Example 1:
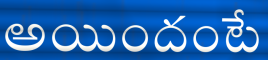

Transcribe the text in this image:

అయిందంటే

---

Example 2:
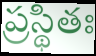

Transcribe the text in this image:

ప్రస్థితః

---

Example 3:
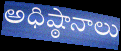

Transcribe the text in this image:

అధిష్ఠానాలు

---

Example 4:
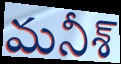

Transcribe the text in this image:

మనీశ్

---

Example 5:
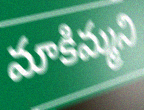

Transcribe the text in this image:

మాకిమ్మని